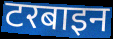
टरबाइन